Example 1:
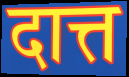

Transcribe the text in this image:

दात्त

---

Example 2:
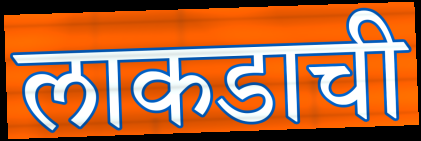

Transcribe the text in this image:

लाकडाची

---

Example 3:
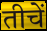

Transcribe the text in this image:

तीचें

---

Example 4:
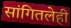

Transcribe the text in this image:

सांगितलेही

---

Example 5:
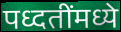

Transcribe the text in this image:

पध्दतींमध्ये